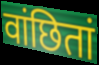
वांछितां